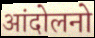
आंदोलनो